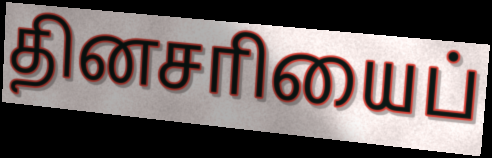
தினசரியைப்